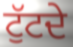
ਟੁੱਟਦੇ